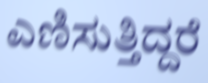
ಎಣಿಸುತ್ತಿದ್ದರೆ